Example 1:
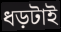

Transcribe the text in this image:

ধড়টাই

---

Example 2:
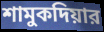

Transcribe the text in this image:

শামুকদিয়ার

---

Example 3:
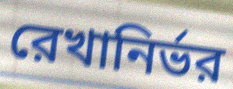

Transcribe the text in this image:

রেখানির্ভর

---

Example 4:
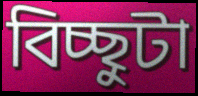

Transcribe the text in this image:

বিচ্ছুটা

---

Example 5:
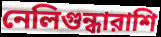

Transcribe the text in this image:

নেলিগুন্ধারাশি